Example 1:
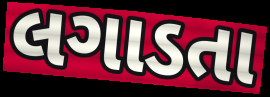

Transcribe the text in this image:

લગાડતા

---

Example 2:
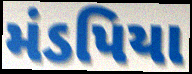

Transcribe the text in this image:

મંડપિયા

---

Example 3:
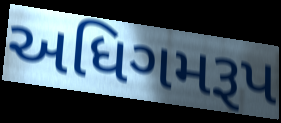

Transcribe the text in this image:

અધિગમરૂપ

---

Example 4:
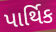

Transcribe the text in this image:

પાર્થિક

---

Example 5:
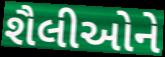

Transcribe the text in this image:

શૈલીઓને